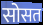
सोसत